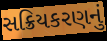
સક્રિયકરણનું